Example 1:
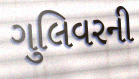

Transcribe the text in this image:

ગુલિવરની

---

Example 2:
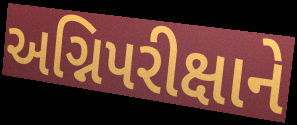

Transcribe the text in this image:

અગ્નિપરીક્ષાને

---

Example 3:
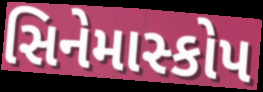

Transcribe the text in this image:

સિનેમાસ્કોપ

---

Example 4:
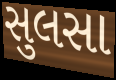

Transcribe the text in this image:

સુલસા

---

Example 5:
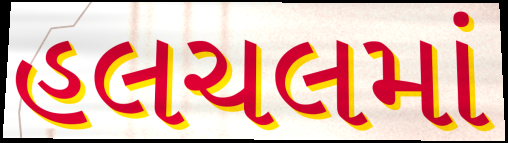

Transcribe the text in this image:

હલચલમાં